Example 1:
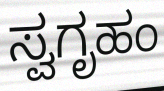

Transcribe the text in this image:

ಸ್ವಗೃಹಂ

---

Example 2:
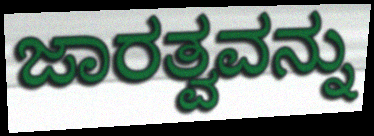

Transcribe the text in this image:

ಜಾರತ್ವವನ್ನು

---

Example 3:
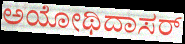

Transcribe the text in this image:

ಅಯೋಥಿದಾಸರ್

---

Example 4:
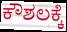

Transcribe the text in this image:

ಕೌಶಲಕ್ಕೆ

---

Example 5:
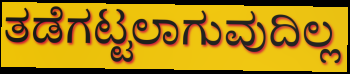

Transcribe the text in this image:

ತಡೆಗಟ್ಟಲಾಗುವುದಿಲ್ಲ